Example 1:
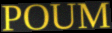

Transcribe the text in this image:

POUM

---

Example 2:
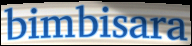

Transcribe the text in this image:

bimbisara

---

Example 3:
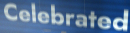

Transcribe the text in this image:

Celebrated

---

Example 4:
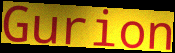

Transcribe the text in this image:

Gurion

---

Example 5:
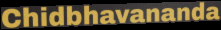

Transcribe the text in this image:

Chidbhavananda